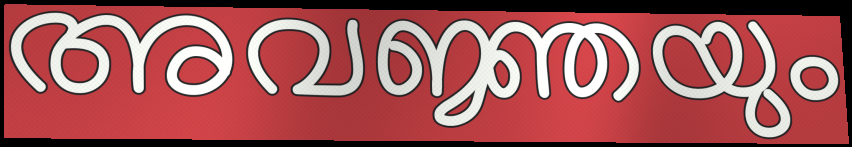
അവജ്ഞയും